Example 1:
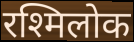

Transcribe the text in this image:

रश्मिलोक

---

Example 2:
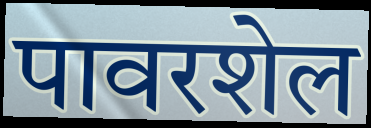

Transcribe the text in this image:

पावरशेल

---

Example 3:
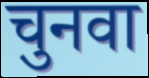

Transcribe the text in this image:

चुनवा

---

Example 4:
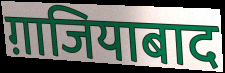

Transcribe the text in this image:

ग़ाजियाबाद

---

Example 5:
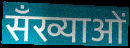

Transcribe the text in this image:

सँख्याओं